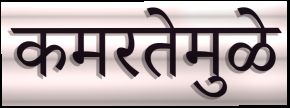
कमरतेमुळे